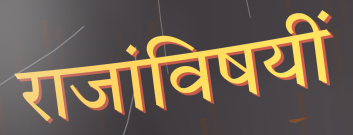
राजांविषयीं